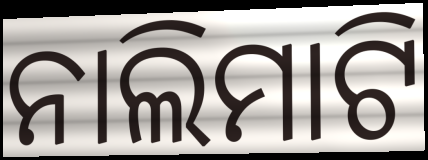
ନାଲିମାଟି